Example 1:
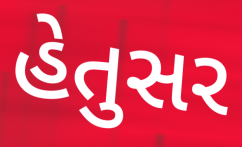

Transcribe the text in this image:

હેતુસર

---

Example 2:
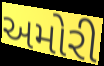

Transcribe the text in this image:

અમોરી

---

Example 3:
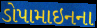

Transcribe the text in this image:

ડોપામાઇનના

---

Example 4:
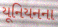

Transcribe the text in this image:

યૂનિયનના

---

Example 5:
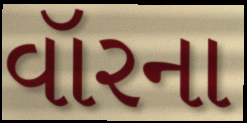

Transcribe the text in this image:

વૉરના